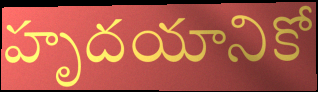
హృదయానికో